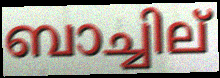
ബാച്ചില്